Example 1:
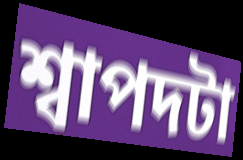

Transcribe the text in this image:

শ্বাপদটা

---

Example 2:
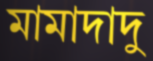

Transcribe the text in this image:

মামাদাদু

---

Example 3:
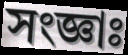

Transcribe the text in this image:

সংজ্ঞাঃ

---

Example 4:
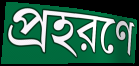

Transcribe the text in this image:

প্রহরণে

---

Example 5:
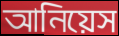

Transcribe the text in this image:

আনিয়েস